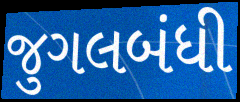
જુગલબંધી